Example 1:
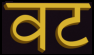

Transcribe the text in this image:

वट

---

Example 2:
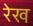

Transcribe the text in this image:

रेख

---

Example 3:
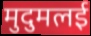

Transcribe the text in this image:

मुदुमलई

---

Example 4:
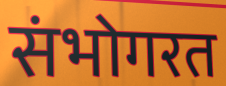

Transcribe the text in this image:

संभोगरत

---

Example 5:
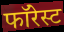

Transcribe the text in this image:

फॉरेस्ट